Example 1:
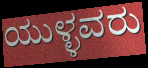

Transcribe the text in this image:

ಯುಳ್ಳವರು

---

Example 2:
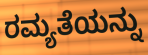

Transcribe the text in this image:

ರಮ್ಯತೆಯನ್ನು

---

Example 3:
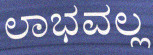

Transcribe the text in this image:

ಲಾಭವಲ್ಲ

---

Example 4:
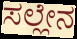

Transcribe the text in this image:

ಸಲ್ಲೇನ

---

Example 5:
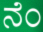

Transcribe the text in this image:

ನೆಂ